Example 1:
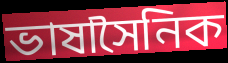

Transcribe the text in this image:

ভাষাসৈনিক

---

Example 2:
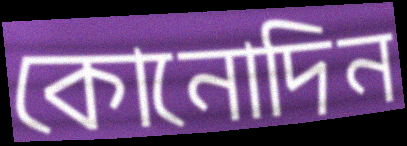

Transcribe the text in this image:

কোনোদিন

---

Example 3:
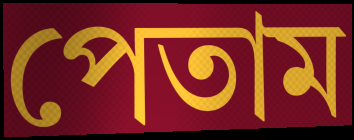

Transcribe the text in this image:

পেতাম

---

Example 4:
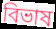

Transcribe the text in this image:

বিভাষ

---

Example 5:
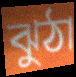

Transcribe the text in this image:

ঝুঠা